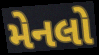
મેનલો